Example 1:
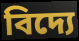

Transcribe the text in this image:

বিদ্যে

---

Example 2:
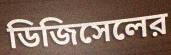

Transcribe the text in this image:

ডিজিসেলের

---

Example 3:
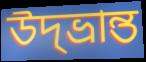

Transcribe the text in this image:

উদ্‌ভ্রান্ত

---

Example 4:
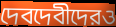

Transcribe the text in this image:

দেবদেবীদেরও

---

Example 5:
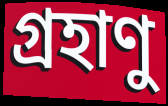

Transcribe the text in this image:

গ্রহাণু